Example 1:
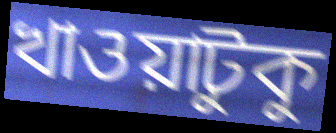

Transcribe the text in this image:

খাওয়াটুকু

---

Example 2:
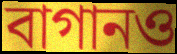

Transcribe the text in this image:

বাগানও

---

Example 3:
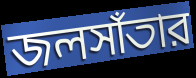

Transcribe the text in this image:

জলসাঁতার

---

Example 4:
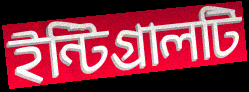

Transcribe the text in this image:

ইন্টিগ্রালটি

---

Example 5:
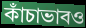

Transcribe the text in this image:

কাঁচাভাবও